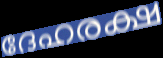
ദേഹരക്ഷ